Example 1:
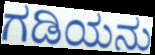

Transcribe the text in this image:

ಗಡಿಯನು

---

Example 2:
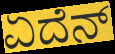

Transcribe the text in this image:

ಏದೆನ್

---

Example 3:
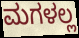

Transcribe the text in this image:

ಮಗಳಲ್ಲ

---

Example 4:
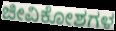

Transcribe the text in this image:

ಜೀವಿಕೋಶಗಳ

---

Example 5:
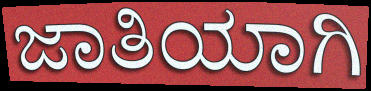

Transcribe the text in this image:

ಜಾತಿಯಾಗಿ